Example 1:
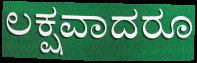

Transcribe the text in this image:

ಲಕ್ಷವಾದರೂ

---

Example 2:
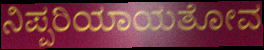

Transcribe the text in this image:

ನಿಪ್ಪರಿಯಾಯತೋವ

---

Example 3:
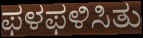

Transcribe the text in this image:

ಫಳಫಳಿಸಿತು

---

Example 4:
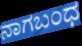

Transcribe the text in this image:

ನಾಗಬಂಧ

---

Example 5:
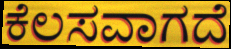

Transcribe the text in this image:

ಕೆಲಸವಾಗದೆ